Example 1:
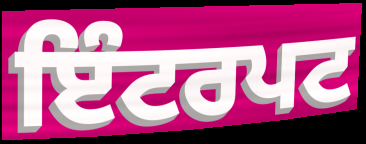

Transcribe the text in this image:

ਇੰਟਰਪਟ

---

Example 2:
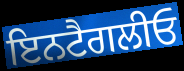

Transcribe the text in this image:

ਇਨਟੈਗਲੀਓ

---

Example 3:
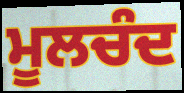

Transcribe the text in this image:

ਮੂਲਚੰਦ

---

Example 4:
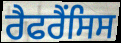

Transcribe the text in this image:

ਰੈਫਰੈਂਸਿਸ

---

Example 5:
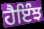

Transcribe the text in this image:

ਹੈਇੰਝ